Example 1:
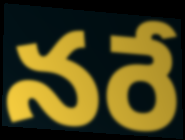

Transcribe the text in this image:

నరే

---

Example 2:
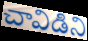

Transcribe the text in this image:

చావిడిని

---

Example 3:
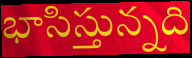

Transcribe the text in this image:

భాసిస్తున్నది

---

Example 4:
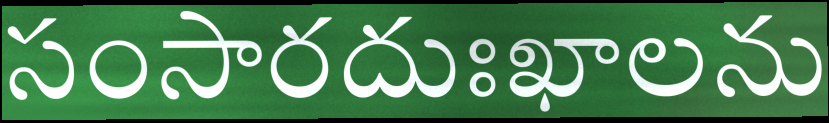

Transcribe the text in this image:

సంసారదుఃఖాలను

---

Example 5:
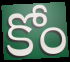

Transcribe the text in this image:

కోం